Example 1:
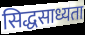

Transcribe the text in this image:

सिद्धसाध्यता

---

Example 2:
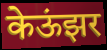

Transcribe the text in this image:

केऊंझर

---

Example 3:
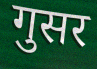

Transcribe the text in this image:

गुसर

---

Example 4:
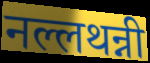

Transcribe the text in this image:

नल्लथन्नी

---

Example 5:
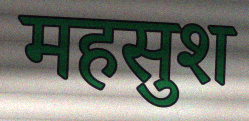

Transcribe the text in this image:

महसुश